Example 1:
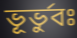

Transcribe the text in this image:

ভূর্ভুবঃ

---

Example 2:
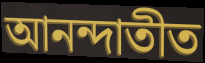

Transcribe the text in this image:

আনন্দাতীত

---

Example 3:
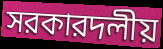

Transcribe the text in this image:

সরকারদলীয়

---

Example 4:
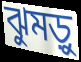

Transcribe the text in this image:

ঝুমড়ু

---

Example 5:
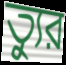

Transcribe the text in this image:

ত্যুর